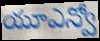
యూఎన్వో